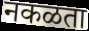
नकळता